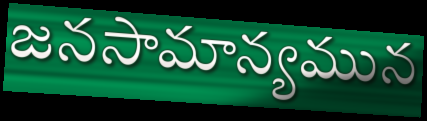
జనసామాన్యమున